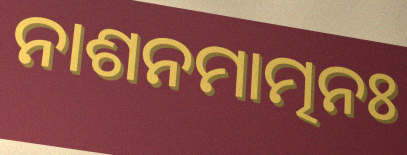
ନାଶନମାତ୍ମନଃ